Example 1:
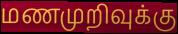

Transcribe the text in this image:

மணமுறிவுக்கு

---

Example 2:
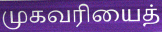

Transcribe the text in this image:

முகவரியைத்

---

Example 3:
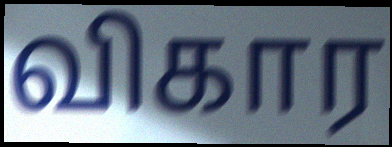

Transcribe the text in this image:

விகார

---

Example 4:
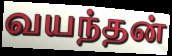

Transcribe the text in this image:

வயந்தன்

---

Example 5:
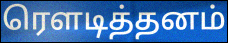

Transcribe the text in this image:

ரௌடித்தனம்